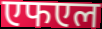
एफएल